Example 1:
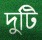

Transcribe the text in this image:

দুটি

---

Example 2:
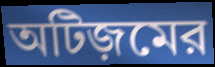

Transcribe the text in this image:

অটিজ়মের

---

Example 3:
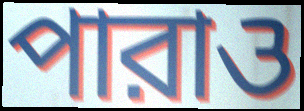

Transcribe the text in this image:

পারাও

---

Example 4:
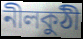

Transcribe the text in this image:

নীলকুঠী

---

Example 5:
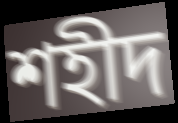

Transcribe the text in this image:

শহীদ